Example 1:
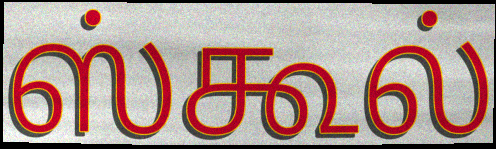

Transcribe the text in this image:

ஸ்கூல்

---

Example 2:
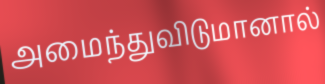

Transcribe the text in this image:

அமைந்துவிடுமானால்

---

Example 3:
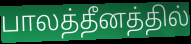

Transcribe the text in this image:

பாலத்தீனத்தில்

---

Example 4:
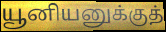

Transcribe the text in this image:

யூனியனுக்குத்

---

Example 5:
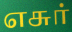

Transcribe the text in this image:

எசுர்